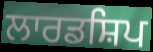
ਲਾਰਡਸ਼ਿਪ